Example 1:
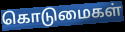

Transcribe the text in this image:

கொடுமைகள்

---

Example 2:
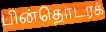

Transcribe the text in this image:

பின்தொடரக்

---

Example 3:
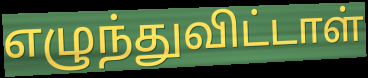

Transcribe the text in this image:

எழுந்துவிட்டாள்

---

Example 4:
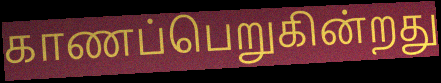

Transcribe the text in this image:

காணப்பெறுகின்றது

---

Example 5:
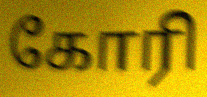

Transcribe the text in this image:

கோரி